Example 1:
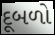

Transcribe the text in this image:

દૂબળો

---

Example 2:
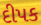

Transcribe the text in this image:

દીપક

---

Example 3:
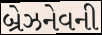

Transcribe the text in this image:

બ્રેઝનેવની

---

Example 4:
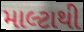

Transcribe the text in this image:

માલ્ટાથી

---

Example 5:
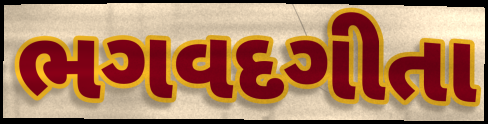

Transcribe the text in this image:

ભગવદગીતા